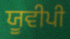
ਯੂਵੀਪੀ